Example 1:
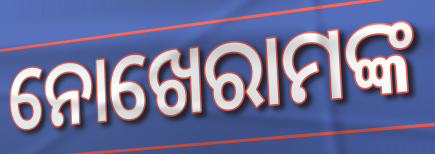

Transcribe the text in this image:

ନୋଖେରାମଙ୍କ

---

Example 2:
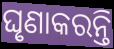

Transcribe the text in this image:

ଘୃଣାକରନ୍ତି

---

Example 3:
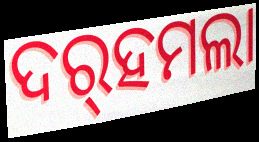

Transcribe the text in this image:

ଦର୍‌ହମଲା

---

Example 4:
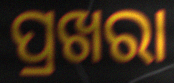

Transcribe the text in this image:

ପ୍ରଖରା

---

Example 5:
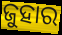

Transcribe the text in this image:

ଜୁହାର